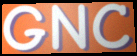
GNC